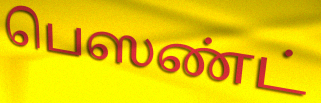
பெஸண்ட்